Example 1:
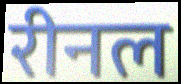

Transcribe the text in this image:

रीनल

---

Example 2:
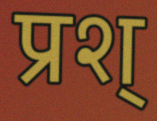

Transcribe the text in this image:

प्रश्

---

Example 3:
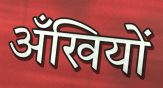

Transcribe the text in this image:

अँखियों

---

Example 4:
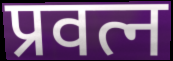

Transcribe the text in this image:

प्रवत्न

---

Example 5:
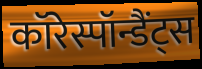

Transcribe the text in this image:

कॉरेस्पॉन्डैंट्स